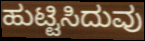
ಹುಟ್ಟಿಸಿದುವು